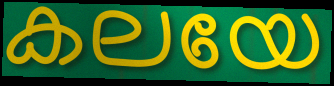
കലയേ